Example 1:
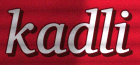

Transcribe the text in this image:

kadli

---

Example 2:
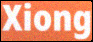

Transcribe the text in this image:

Xiong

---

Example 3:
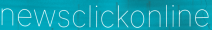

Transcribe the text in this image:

newsclickonline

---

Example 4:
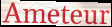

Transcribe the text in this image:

Ameteur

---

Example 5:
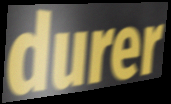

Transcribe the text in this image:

durer